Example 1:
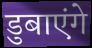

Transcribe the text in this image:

डुबाएंगे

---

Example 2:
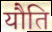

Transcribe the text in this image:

यौति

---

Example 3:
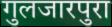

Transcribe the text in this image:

गुलजारपुरा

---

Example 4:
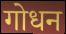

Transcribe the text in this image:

गोधन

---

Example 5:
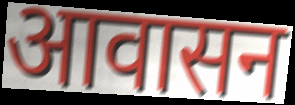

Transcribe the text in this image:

आवासन